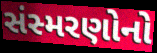
સંસ્મરણોનો